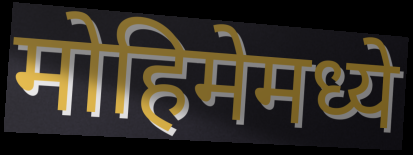
मोहिमेमध्ये